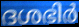
ദശഭിർ